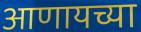
आणायच्या